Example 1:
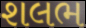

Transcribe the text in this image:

શલભ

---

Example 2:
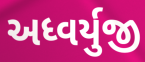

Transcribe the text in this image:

અધ્વર્યુજી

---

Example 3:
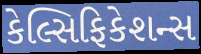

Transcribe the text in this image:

કેલ્સિફિકેશન્સ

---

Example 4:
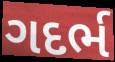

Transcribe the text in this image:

ગદર્ભ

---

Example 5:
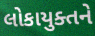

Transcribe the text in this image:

લોકાયુક્તને